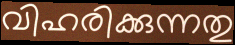
വിഹരിക്കുന്നതു